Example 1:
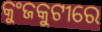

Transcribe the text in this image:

କୁଂଜକୁଟୀରେ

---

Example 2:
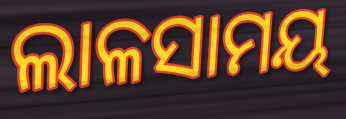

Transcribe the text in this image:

ଲାଳସାମୟ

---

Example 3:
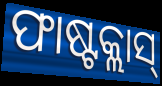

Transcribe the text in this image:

ଫାଷ୍ଟକ୍ଲାସ୍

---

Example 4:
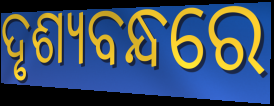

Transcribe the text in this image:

ଦୃଶ୍ୟବନ୍ଧରେ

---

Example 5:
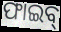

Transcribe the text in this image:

ଫାଇବ୍